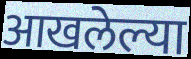
आखलेल्या